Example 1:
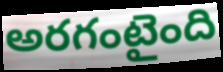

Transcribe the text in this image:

అరగంటైంది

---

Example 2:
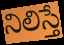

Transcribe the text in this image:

నిలిస్తే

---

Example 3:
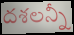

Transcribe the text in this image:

దశలన్నీ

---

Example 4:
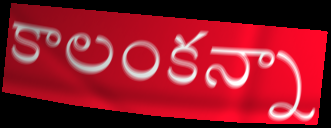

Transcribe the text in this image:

కాలంకన్నా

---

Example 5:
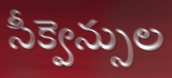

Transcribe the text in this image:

సీక్వెన్సుల